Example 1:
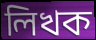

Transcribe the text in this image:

লিখক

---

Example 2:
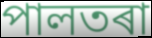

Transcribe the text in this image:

পালতৰা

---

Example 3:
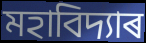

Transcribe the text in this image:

মহাবিদ্যাৰ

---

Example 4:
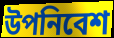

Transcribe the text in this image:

উপনিবেশ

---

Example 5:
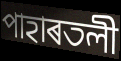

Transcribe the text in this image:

পাহাৰতলী